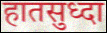
हातसुध्दा